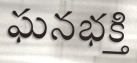
ఘనభక్తి